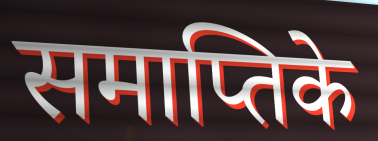
समाप्तिके